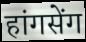
हांगसेंग